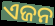
ଏଜନ